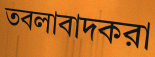
তবলাবাদকরা